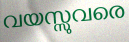
വയസ്സുവരെ